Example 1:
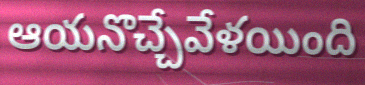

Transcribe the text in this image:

ఆయనొచ్చేవేళయింది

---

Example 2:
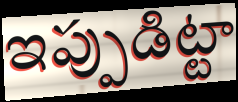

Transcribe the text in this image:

ఇప్పుడిట్టా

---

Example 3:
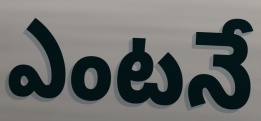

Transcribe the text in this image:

ఎంటనే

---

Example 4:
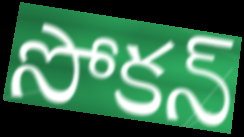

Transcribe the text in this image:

సోకన్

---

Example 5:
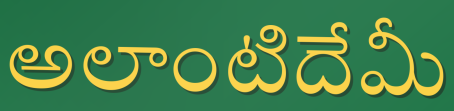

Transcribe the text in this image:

అలాంటిదేమీ